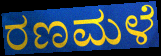
ರಣಮಳೆ